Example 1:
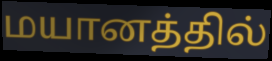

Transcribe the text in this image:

மயானத்தில்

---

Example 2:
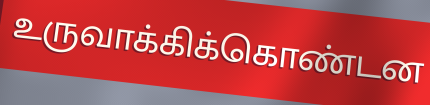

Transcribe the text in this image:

உருவாக்கிக்கொண்டன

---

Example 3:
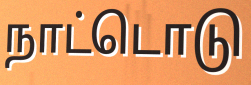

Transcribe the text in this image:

நாட்டொடு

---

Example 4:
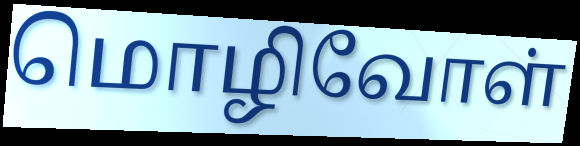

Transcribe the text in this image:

மொழிவோள்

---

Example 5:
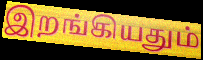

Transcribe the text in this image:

இறங்கியதும்